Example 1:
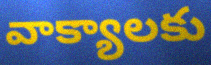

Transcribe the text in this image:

వాక్యాలకు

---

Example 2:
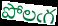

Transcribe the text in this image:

పోలఁగ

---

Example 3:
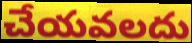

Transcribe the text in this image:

చేయవలదు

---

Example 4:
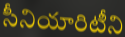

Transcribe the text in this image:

సీనియారిటీని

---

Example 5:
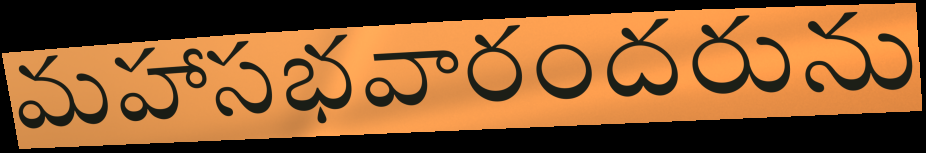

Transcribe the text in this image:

మహాసభవారందరును